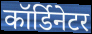
कॉर्डिनेटर